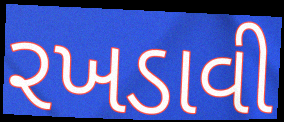
રખડાવી